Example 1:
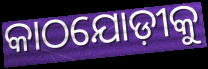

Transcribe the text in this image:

କାଠଯୋଡ଼ୀକୁ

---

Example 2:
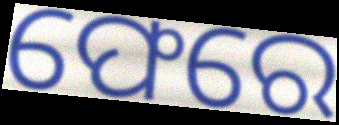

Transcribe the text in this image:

ଫେରେ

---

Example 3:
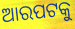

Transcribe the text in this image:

ଆରପଟକୁ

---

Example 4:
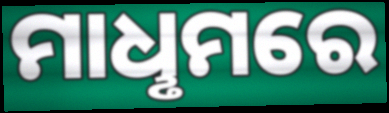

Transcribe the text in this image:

ମାଧୢମରେ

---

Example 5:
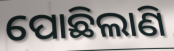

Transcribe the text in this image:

ପୋଛିଲାଣି